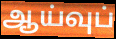
ஆய்வுப்